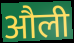
औली